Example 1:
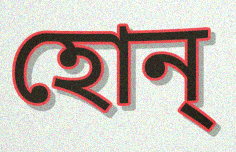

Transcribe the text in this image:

হোন্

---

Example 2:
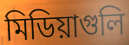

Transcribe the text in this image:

মিডিয়াগুলি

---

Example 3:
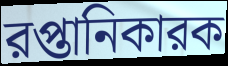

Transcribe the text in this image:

রপ্তানিকারক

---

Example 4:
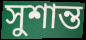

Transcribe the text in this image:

সুশান্ত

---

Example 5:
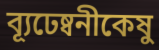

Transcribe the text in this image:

ব্যূঢেষ্বনীকেষু